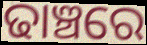
ଢାଞ୍ଚରେ